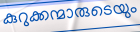
കുറുക്കന്മാരുടെയും